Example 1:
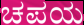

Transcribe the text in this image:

ಚಪಯ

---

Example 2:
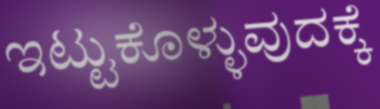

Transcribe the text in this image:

ಇಟ್ಟುಕೊಳ್ಳುವುದಕ್ಕೆ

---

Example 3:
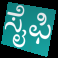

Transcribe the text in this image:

ಸೈಫಿ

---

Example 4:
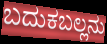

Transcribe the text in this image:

ಬದುಕಬಲ್ಲನು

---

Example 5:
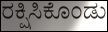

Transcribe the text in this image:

ರಕ್ಷಿಸಿಕೊಂಡು